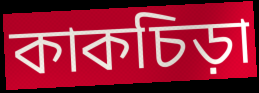
কাকচিড়া